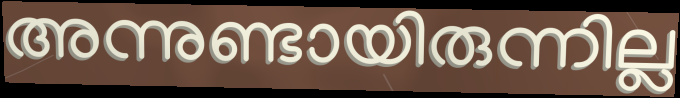
അന്നുണ്ടായിരുന്നില്ല